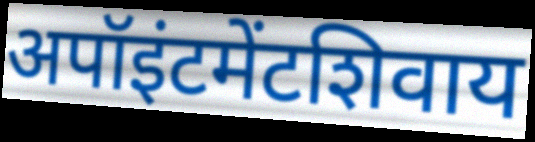
अपॉइंटमेंटशिवाय